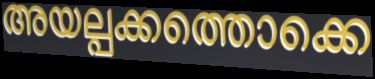
അയല്പക്കത്തൊക്കെ